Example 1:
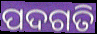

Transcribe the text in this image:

ପଦଗତି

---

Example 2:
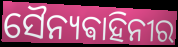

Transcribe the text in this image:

ସୈନ୍ୟଵାହିନୀର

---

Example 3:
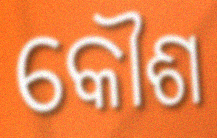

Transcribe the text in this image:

କୌଶ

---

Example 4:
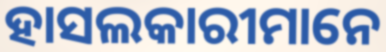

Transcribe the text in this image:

ହାସଲକାରୀମାନେ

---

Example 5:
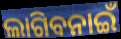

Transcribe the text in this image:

ଲାଗିବନାଇଁ